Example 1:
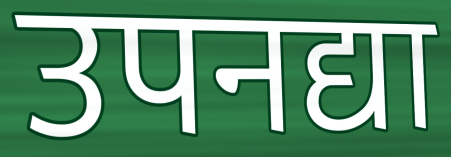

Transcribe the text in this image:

उपनद्या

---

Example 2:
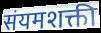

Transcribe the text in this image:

संयमशक्ती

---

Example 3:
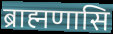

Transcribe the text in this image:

ब्राह्मणासि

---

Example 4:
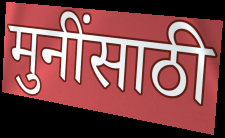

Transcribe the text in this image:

मुनींसाठी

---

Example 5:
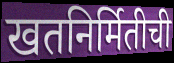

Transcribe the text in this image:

खतनिर्मितीची